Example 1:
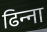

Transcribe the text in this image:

ढिन्ना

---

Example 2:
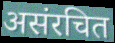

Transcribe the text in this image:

असंरचित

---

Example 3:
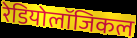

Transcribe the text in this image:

रेडियोलॉजिकल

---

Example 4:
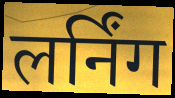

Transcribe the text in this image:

लर्निंग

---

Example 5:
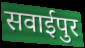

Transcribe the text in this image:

सवाईपुर